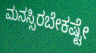
ಮನಸ್ಸಿರಬೇಕಷ್ಟೇ